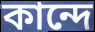
কান্দে